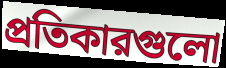
প্রতিকারগুলো